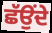
ਛੱਉਂਦੇ